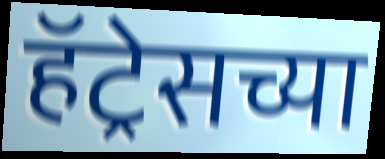
हॅट्रेसच्या